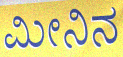
ಮೀನಿನ